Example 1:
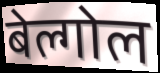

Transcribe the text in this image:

बेल्गोल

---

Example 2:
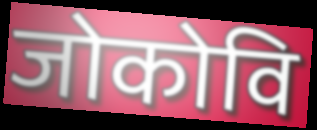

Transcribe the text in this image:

जोकोवि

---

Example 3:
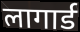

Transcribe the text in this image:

लागार्ड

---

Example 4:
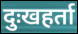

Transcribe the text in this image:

दुःखहर्ता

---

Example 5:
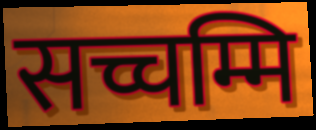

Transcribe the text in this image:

सच्चम्मि